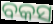
ବକସ